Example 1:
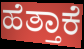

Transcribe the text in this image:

ಹೆತ್ತಾಕೆ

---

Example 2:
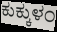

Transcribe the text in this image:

ಕುಕ್ಕುಳಂ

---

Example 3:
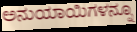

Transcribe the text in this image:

ಅನುಯಾಯಿಗಳನ್ನೂ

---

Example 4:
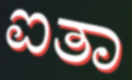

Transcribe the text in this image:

ಐತಾ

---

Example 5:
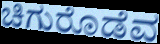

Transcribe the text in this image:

ಚಿಗುರೊಡೆವ